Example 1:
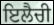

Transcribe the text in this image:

ਇਲੈਚੀ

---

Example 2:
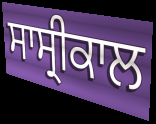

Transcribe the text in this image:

ਸਾਸ੍ਰੀਕਾਲ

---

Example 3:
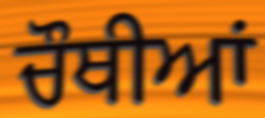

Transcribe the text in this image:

ਚੌਥੀਆਂ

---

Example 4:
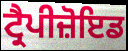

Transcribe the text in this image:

ਟ੍ਰੈਪੀਜ਼ੋਇਡ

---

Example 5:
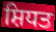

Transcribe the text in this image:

ਸ਼ਿਧਤ